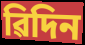
ৱিদিন